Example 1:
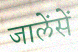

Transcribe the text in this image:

जालेंसें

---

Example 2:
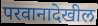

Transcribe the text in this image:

परवानादेखील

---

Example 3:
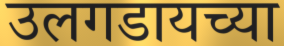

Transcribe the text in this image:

उलगडायच्या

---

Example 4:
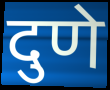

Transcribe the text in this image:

दुणे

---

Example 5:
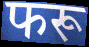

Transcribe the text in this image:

फरू